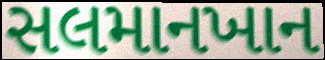
સલમાનખાન